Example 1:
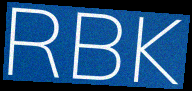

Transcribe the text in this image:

RBK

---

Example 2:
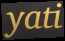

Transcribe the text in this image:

yati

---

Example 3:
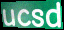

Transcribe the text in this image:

ucsd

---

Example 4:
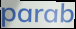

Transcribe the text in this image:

parab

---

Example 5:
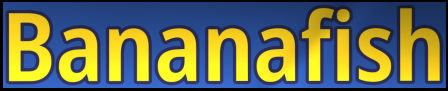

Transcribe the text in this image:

Bananafish